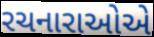
રચનારાઓએ